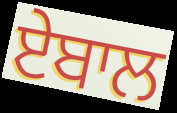
ਏਬਾਲ